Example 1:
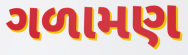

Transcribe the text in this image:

ગળામણ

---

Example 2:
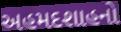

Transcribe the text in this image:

અહમદશાહનો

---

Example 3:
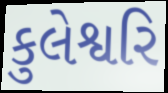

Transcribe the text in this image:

કુલેશ્વરિ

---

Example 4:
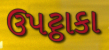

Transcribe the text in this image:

ઉપટ્ઠાકા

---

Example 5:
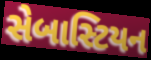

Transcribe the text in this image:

સેબાસ્ટિયન